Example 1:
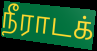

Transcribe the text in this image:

நீராடக்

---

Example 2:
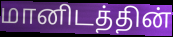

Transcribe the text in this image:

மானிடத்தின்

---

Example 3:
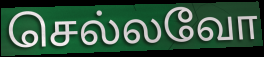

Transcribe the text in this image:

செல்லவோ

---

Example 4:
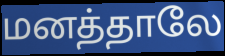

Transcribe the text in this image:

மனத்தாலே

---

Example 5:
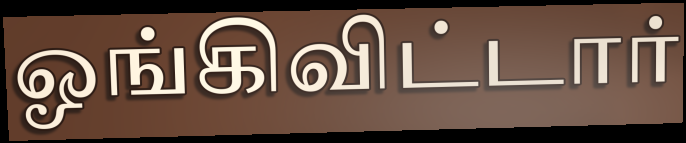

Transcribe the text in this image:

ஓங்கிவிட்டார்